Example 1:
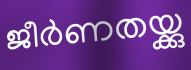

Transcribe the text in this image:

ജീർണതയ്ക്കു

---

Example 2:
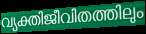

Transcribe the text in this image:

വ്യക്തിജീവിതത്തിലും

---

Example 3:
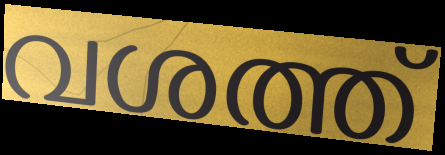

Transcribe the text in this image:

വശത്ത്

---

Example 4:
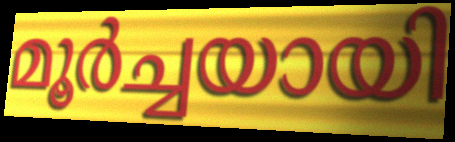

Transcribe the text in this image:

മൂർച്ചയായി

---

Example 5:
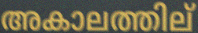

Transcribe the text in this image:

അകാലത്തില്